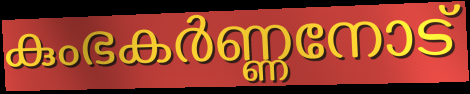
കുംഭകർണ്ണനോട്